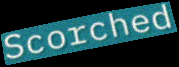
Scorched